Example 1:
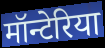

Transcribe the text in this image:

मॉन्टेरिया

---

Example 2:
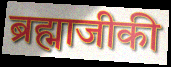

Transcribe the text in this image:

ब्रह्माजीकी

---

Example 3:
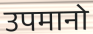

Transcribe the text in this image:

उपमानो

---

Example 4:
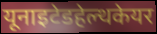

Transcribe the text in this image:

यूनाइटेडहेल्थकेयर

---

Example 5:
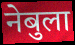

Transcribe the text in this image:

नेबुला